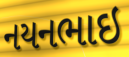
નયનભાઇ